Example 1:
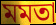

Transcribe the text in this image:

মমতা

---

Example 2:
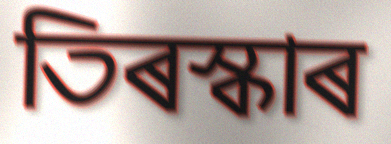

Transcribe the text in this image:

তিৰস্কাৰ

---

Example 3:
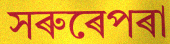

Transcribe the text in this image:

সৰুৰেপৰা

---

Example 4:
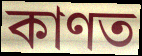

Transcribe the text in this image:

কাণত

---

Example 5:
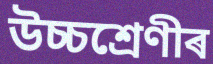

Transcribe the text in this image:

উচ্চশ্ৰেণীৰ